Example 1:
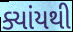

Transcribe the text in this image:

ક્યાંયથી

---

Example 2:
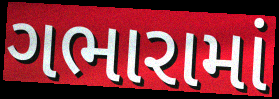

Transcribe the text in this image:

ગભારામાં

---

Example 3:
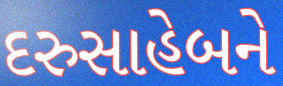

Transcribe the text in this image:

દરુસાહેબને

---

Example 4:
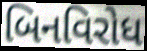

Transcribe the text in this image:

બિનવિરોધ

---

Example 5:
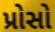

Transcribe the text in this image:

પ્રોસો